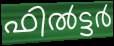
ഫിൽട്ടർ